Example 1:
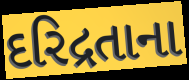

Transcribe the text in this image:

દરિદ્રતાના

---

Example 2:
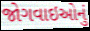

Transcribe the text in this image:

જોગવાઇઓનું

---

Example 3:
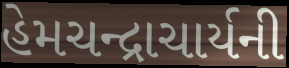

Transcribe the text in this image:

હેમચન્દ્રાચાર્યની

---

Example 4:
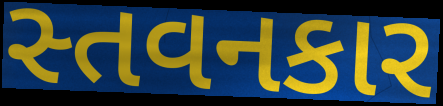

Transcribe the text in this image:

સ્તવનકાર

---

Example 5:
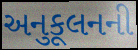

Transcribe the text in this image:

અનુકૂલનની